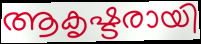
ആകൃഷ്ടരായി